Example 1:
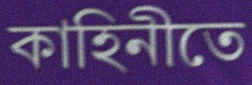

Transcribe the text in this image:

কাহিনীতে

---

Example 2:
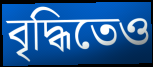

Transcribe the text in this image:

বৃদ্ধিতেও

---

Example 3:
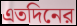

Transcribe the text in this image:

এতদিনের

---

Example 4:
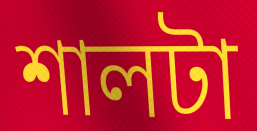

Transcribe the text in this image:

শালটা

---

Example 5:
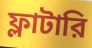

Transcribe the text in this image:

ফ্লাটারি